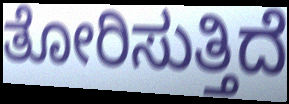
ತೋರಿಸುತ್ತಿದೆ